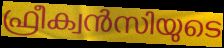
ഫ്രീക്വൻസിയുടെ